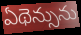
ఏథెన్సును